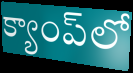
క్యాంప్‌లో